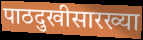
पाठदुखीसारख्या